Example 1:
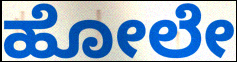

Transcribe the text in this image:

ಹೋಲೇ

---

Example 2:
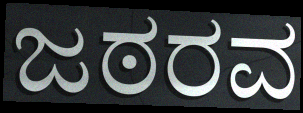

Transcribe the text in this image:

ಜಠರವ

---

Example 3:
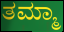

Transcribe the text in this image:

ತಮ್ಮಾ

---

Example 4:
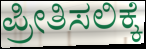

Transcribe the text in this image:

ಪ್ರೀತಿಸಲಿಕ್ಕೆ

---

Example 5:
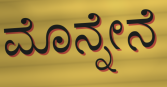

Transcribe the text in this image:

ಮೊನ್ನೇನೆ